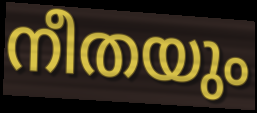
നീതയും